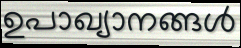
ഉപാഖ്യാനങ്ങൾ